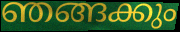
ഞങ്ങക്കും